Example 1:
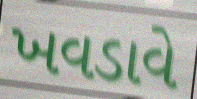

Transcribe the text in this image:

ખવડાવે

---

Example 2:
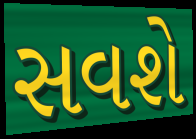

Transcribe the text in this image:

સવશે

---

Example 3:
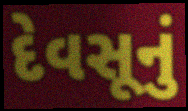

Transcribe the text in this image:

દેવસૂનું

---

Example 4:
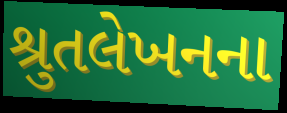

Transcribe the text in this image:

શ્રુતલેખનના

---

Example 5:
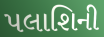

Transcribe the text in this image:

પલાશિની